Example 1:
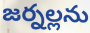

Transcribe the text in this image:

జర్నల్లను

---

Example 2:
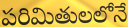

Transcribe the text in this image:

పరిమితులలోనే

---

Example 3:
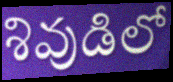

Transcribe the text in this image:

శివుడిలో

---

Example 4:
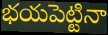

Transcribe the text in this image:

భయపెట్టినా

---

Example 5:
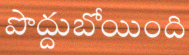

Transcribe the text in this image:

పొద్దుబోయింది